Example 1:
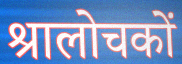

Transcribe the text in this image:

श्रालोचकों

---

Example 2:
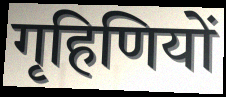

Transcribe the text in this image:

गृहिणियों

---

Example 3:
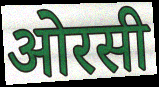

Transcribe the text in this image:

ओरसी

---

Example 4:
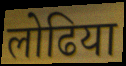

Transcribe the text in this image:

लोढिया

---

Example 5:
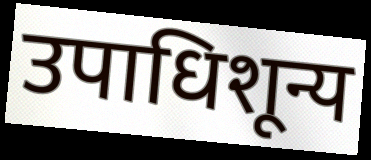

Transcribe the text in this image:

उपाधिशून्य